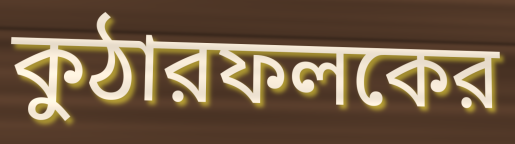
কুঠারফলকের